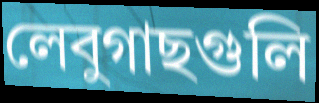
লেবুগাছগুলি